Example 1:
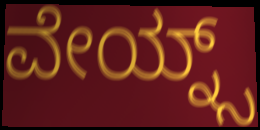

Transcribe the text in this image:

ವೇಯ್ನ್ಸ್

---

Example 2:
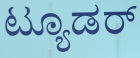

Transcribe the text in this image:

ಟ್ಯೂಡರ್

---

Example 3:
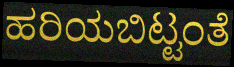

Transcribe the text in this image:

ಹರಿಯಬಿಟ್ಟಂತೆ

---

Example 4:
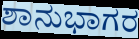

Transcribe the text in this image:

ಶಾನುಭಾಗರ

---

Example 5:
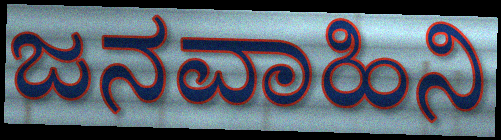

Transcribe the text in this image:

ಜನವಾಹಿನಿ